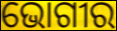
ଭୋଗୀର